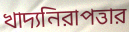
খাদ্যনিরাপত্তার